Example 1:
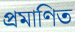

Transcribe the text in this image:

প্ৰমাণিত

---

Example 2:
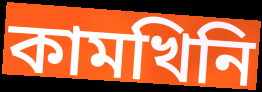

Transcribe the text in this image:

কামখিনি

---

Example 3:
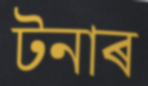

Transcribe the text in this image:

টনাৰ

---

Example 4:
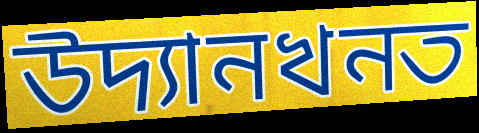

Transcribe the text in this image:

উদ্যানখনত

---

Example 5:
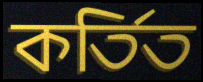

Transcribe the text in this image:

কৰ্তিত